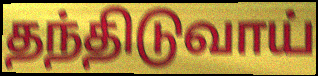
தந்திடுவாய்